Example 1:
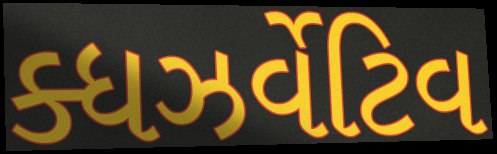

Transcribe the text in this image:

ક્ધઝર્વેટિવ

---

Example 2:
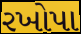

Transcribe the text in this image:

રખોપા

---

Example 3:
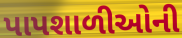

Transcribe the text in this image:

પાપશાળીઓની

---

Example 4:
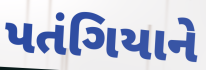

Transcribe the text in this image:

પતંગિયાને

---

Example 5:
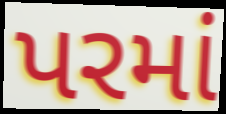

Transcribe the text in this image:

પરમાં